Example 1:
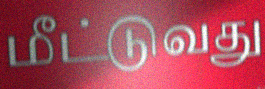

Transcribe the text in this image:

மீட்டுவது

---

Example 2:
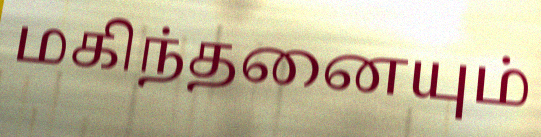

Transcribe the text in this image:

மகிந்தனையும்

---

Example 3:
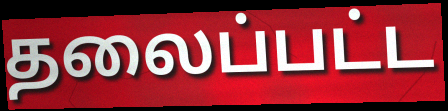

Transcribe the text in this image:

தலைப்பட்ட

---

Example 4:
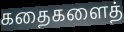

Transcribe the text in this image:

கதைகளைத்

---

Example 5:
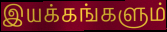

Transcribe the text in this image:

இயக்கங்களும்